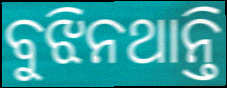
ବୁଝିନଥାନ୍ତି